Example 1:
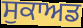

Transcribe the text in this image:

ਸੁਕਾਅਡ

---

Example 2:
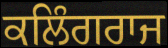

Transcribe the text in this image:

ਕਲਿੰਗਰਾਜ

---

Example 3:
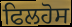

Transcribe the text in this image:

ਫਿਲਹੋਸ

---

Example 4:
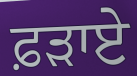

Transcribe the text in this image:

ਫ਼ੜਾਏ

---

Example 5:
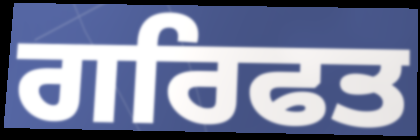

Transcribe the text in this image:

ਗਰਿਫਤ